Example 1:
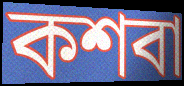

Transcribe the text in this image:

কশবা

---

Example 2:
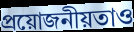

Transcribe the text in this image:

প্রয়োজনীয়তাও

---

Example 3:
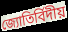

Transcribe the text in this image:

জ্যোতির্বিদীয়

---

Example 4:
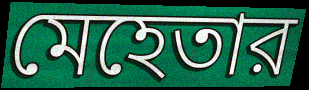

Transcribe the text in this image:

মেহেতার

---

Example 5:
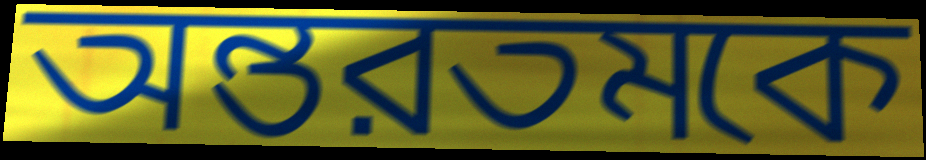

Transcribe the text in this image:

অন্তরতমকে